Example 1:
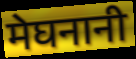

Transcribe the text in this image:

मेघनानी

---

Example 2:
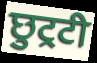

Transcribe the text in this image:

छुट्रटी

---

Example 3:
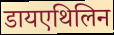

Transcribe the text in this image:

डायएथिलिन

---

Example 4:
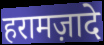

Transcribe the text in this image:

हरामज़ादे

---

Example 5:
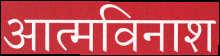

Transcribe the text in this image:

आत्मविनाश